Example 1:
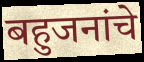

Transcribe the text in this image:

बहुजनांचे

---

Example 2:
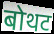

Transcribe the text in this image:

बोथट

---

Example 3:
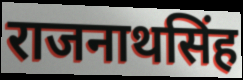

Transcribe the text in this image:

राजनाथसिंह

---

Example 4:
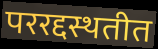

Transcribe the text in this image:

पररद्दस्थतीत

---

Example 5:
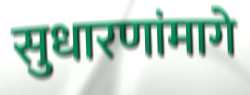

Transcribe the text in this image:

सुधारणांमागे